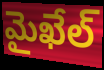
మైఖేల్